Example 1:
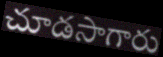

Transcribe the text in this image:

చూడసాగారు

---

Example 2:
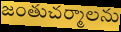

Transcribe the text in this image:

జంతుచర్మాలను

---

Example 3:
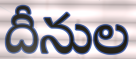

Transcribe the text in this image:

దీనుల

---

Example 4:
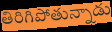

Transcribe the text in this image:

తిరిగిపోతున్నాడు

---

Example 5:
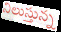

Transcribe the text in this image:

నిలుస్తున్న